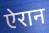
ऐरान